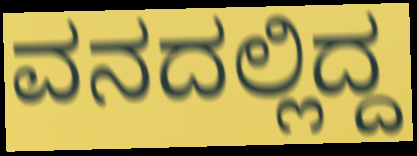
ವನದಲ್ಲಿದ್ದ